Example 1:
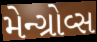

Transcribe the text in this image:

મેન્ગ્રોવ્સ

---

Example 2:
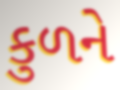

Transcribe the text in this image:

કુળને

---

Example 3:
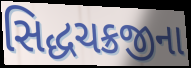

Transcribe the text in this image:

સિદ્ધચક્રજીના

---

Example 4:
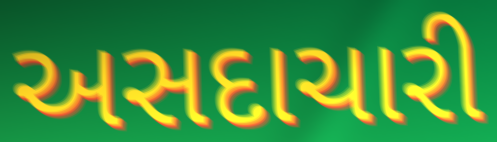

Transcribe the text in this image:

અસદાચારી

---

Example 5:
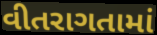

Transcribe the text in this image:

વીતરાગતામાં